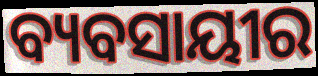
ବ୍ୟବସାୟୀର